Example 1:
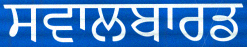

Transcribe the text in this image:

ਸਵਾਲਬਾਰਡ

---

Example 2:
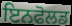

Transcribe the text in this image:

ਇਨਫੋਲਡ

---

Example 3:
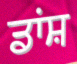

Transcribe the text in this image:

ਡਾਂਸ਼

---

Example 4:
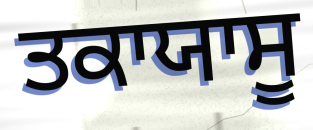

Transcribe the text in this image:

ਤਕਾਯਾਸੂ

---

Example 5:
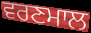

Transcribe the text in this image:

ਵਰਣਮਾਲ